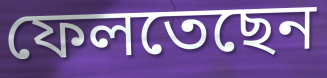
ফেলতেছেন